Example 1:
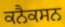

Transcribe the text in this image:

ਕਨੈਕਸਨ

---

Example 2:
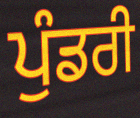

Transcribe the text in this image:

ਪੁੰਡਰੀ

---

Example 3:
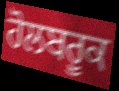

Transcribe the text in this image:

ਹੋਲਬਰੂਕ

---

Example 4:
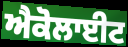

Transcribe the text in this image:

ਐਕੋਲਾਈਟ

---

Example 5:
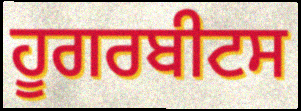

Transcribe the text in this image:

ਹੂਗਰਬੀਟਸ